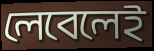
লেবেলেই